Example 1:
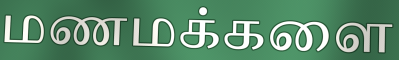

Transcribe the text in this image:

மணமக்களை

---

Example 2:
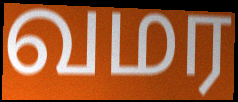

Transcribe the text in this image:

வமர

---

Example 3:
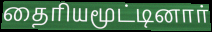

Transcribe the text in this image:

தைரியமூட்டினார்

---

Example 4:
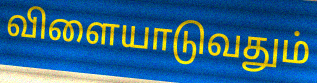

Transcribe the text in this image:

விளையாடுவதும்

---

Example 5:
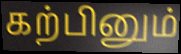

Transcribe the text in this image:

கற்பினும்